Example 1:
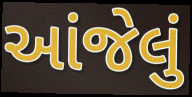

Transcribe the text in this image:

આંજેલું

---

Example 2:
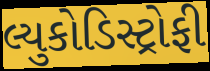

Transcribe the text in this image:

લ્યુકોડિસ્ટ્રોફી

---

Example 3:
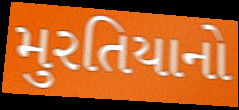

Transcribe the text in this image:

મુરતિયાનો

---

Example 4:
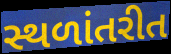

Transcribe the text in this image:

સ્થળાંતરીત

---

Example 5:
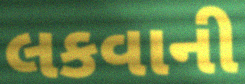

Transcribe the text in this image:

લકવાની